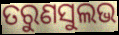
ତରୁଣସୁଲଭ